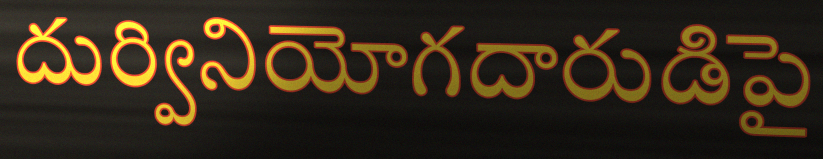
దుర్వినియోగదారుడిపై